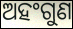
ଅହଂଗୁଣ